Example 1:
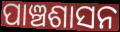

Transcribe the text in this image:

ପାଞ୍ଚଶାସନ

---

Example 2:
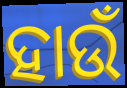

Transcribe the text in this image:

ହାଉଁ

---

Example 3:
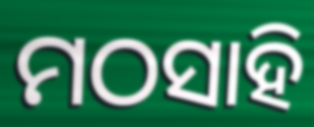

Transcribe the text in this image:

ମଠସାହି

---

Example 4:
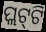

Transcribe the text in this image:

ପ୍ଲଟ୍‌ଟି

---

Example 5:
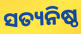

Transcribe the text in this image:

ସତ୍ୟନିଷ୍ଠ